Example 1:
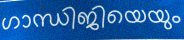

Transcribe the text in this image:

ഗാന്ധിജിയെയും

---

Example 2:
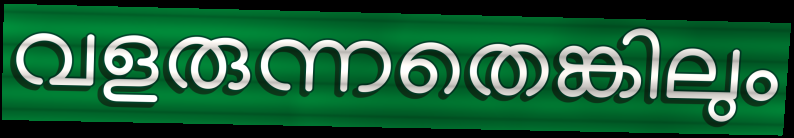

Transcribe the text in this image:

വളരുന്നതെങ്കിലും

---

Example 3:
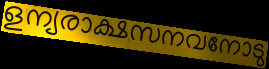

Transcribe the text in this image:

ളന്യരാക്ഷസനവനോടു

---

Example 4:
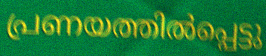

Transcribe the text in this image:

പ്രണയത്തിൽപ്പെട്ടു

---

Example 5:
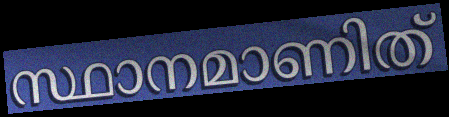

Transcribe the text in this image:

സ്ഥാനമാണിത്